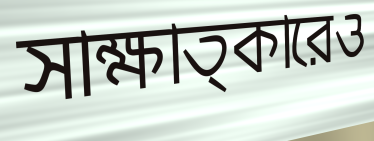
সাক্ষাত্কারেও